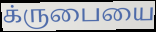
க்ருபையை